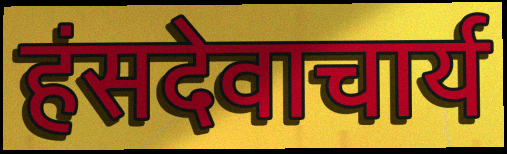
हंसदेवाचार्य